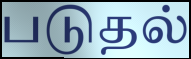
படுதல்